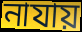
নাযায়